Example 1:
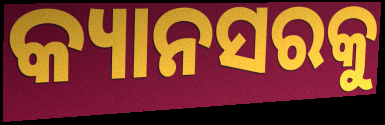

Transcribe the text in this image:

କ୍ୟାନସରକୁ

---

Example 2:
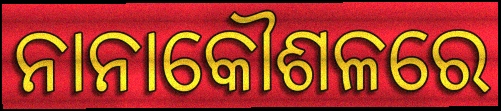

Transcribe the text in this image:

ନାନାକୌଶଳରେ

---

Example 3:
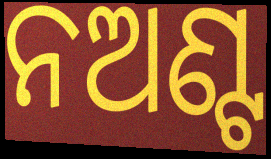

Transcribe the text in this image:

ନଅଣ୍ଟ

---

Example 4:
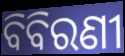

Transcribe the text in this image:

ବିବିରଣୀ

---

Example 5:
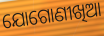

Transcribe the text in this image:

ଯୋଗୋଣୀଖିଆ